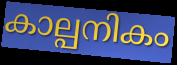
കാല്പനികം